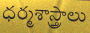
ధర్మశాస్త్రాలు